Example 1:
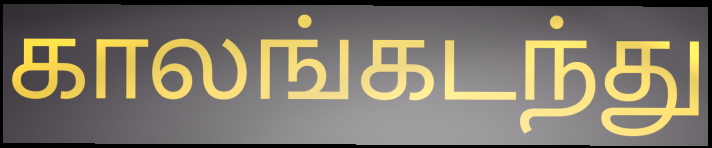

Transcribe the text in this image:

காலங்கடந்து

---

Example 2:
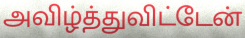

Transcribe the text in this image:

அவிழ்த்துவிட்டேன்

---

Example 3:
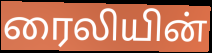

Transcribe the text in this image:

ரைலியின்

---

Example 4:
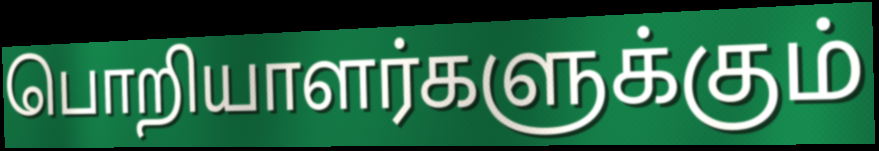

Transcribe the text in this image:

பொறியாளர்களுக்கும்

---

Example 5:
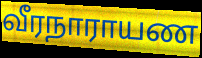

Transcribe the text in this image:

வீரநாராயண